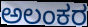
ಅಲಂಕರ